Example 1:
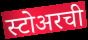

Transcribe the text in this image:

स्टोअरची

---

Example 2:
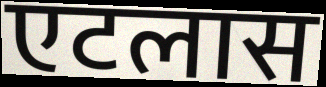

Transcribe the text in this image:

एटलास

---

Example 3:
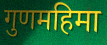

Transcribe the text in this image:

गुणमहिमा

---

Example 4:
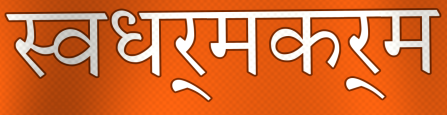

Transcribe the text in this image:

स्वधर्मकर्म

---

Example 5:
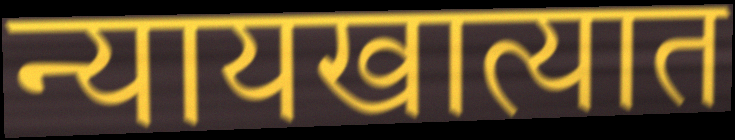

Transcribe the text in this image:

न्यायखात्यात